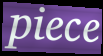
piece